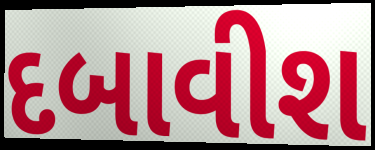
દબાવીશ